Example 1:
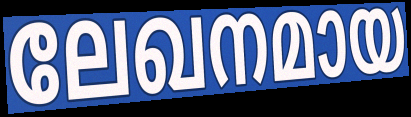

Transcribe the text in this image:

ലേഖനമായ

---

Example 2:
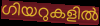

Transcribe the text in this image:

ഗിയറുകളിൽ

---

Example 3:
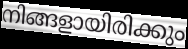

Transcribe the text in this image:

നിങ്ങളായിരിക്കും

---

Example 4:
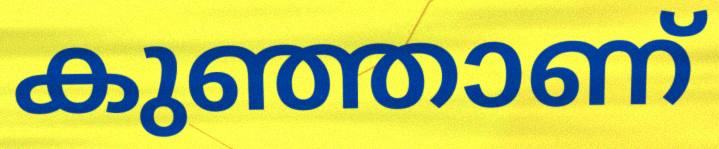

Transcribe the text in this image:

കുഞ്ഞാണ്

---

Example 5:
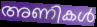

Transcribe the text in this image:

അണികൾ